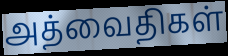
அத்வைதிகள்